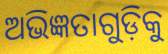
ଅଭିଜ୍ଞତାଗୁଡ଼ିକୁ